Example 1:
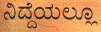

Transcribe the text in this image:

ನಿದ್ದೆಯಲ್ಲೂ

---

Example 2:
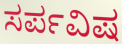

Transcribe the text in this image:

ಸರ್ಪವಿಷ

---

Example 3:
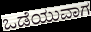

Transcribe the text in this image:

ಒಡೆಯುವಾಗ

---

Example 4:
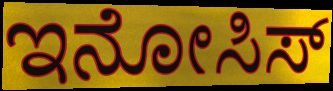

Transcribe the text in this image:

ಇನೋಸಿಸ್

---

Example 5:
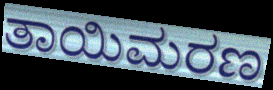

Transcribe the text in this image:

ತಾಯಿಮರಣ